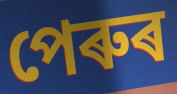
পেৰুৰ